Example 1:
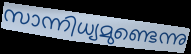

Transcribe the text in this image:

സാന്നിധ്യമുണ്ടെന്നു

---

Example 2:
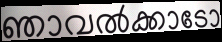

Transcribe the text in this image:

ഞാവൽക്കാടോ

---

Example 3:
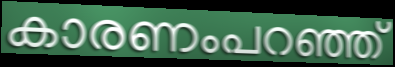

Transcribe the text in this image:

കാരണംപറഞ്ഞ്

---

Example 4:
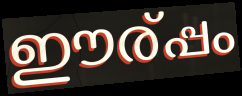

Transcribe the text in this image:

ഈര്പ്പം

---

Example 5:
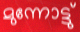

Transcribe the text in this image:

മുന്നോട്ടു്